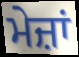
ਮੇਜ਼ਾਂ